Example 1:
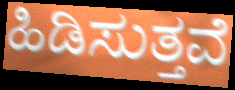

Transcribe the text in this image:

ಹಿಡಿಸುತ್ತವೆ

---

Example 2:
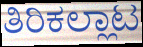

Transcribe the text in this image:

ತಿರಿಕಲ್ಲಾಟ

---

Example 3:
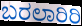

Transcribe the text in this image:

ಬರಲಾರಿರಿ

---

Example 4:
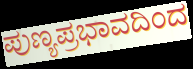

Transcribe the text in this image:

ಪುಣ್ಯಪ್ರಭಾವದಿಂದ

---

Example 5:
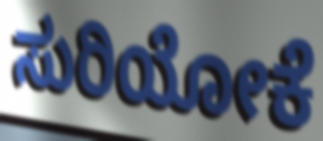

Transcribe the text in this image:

ಸುರಿಯೋಕೆ